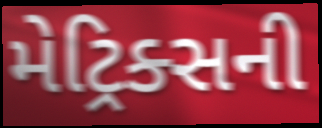
મેટ્રિક્સની